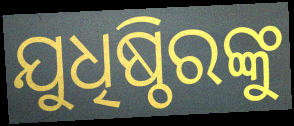
ଯୁଧିଷ୍ଠିରଙ୍କୁ